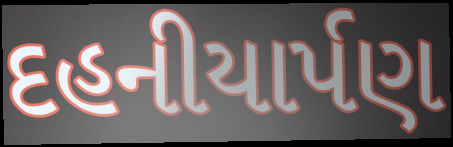
દહનીયાર્પણ